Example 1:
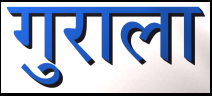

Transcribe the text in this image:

गुराला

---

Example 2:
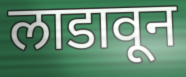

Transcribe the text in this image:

लाडावून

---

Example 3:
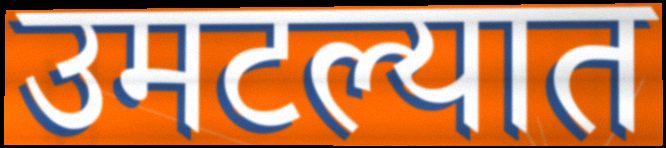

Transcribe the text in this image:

उमटल्यात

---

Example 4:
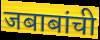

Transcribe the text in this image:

जबाबांची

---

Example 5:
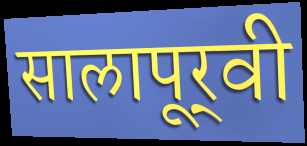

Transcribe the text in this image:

सालापूर्वी